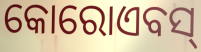
କୋରୋଏବସ୍